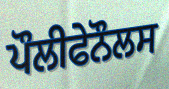
ਪੌਲੀਫੇਨੌਲਸ